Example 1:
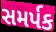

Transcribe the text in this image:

સમર્પક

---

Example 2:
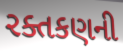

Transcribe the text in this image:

રક્તકણની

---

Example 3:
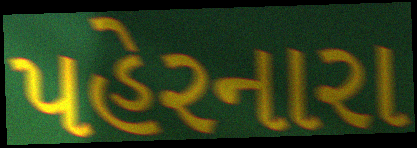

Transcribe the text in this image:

પહેરનારા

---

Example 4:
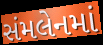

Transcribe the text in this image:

સંમલેનમાં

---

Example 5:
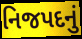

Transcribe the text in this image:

નિજપદનું